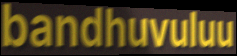
bandhuvuluu